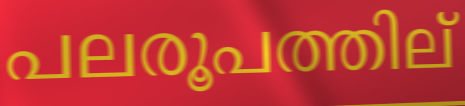
പലരൂപത്തില്